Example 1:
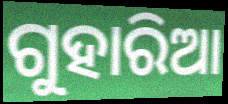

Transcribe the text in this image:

ଗୁହାରିଆ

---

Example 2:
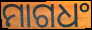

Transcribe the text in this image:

ମାଗଧଂ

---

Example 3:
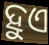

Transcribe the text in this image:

ହୁଏ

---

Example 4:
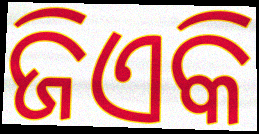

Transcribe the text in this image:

ଜିଏକି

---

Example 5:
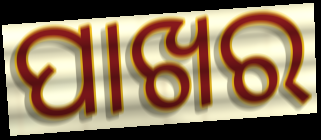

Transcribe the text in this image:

ପାଖର